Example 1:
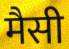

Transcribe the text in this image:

मैसी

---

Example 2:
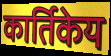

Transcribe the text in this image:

कार्तिकेय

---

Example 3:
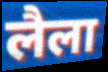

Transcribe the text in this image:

लैला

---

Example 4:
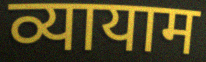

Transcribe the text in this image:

व्यायाम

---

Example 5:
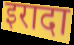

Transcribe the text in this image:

इरादा